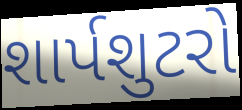
શાર્પશુટરો